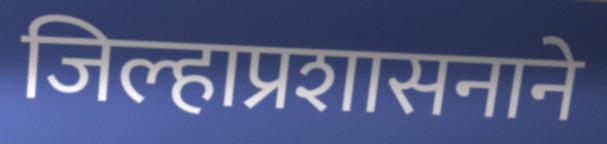
जिल्हाप्रशासनाने